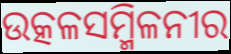
ଉତ୍କଳସମ୍ମିଳନୀର